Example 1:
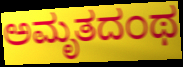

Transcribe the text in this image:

ಅಮೃತದಂಥ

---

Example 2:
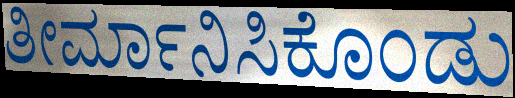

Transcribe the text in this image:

ತೀರ್ಮಾನಿಸಿಕೊಂಡು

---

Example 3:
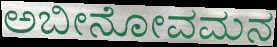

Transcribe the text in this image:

ಅಬೀನೋವಮನ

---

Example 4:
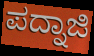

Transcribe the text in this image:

ಪದ್ನಾಜಿ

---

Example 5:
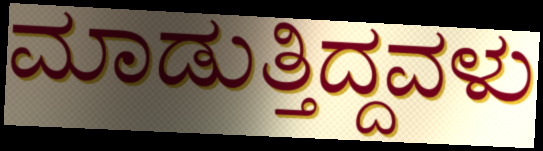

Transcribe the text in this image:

ಮಾಡುತ್ತಿದ್ದವಳು